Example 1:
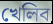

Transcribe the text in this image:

খেলিব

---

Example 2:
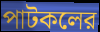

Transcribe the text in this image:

পাটকলের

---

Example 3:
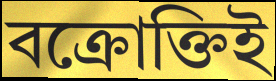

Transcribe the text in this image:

বক্রোক্তিই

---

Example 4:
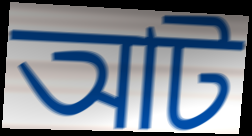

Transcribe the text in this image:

আট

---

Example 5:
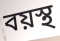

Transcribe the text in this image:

বয়স্থ